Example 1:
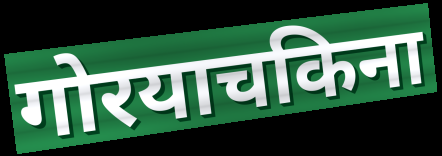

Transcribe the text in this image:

गोरयाचकिना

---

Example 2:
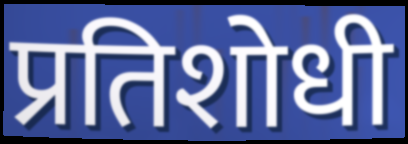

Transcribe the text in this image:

प्रतिशोधी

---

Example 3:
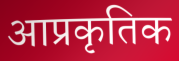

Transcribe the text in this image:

आप्रकृतिक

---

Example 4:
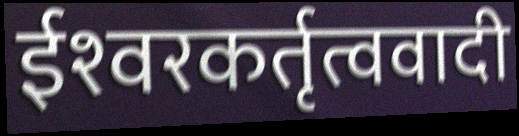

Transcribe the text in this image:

ईश्वरकर्तृत्ववादी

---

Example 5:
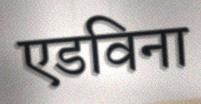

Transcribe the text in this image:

एडविना